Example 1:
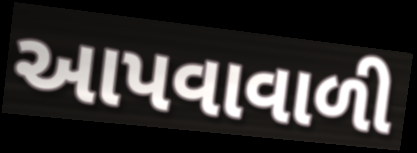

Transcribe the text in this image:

આપવાવાળી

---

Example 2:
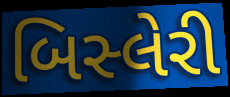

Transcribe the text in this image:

બિસ્લેરી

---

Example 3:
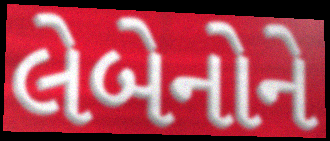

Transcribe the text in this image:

લેબેનોને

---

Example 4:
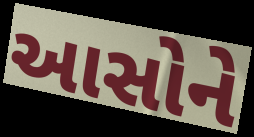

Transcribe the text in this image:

આસોને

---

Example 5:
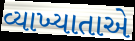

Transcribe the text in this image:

વ્યાખ્યાતાએ